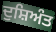
ਦੁਸ਼ਿਅੰਤ